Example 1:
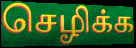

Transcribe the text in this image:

செழிக்க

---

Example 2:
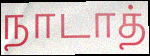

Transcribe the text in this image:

நாடாத்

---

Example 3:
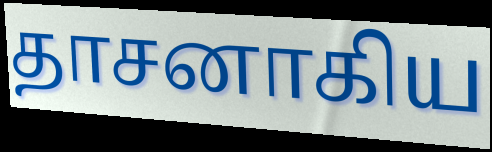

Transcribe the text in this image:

தாசனாகிய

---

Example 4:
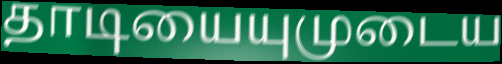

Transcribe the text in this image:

தாடியையுமுடைய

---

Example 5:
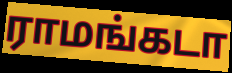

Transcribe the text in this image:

ராமங்கடா